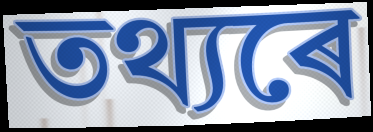
তথ্যৰে